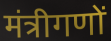
मंत्रीगणों